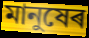
মানুষেৰ